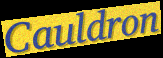
Cauldron